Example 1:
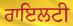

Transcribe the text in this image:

ਰਾਇਲਟੀ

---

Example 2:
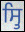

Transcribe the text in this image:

ਸ੍ਤਿ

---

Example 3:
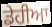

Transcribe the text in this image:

ਡੇਹੀਆ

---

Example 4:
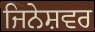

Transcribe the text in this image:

ਜਿਨੇਸ਼ਵਰ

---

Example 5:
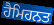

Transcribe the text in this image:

ਹੈਮਿਹਨਤ